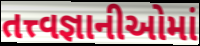
તત્ત્વજ્ઞાનીઓમાં